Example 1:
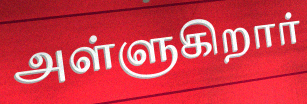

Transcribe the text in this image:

அள்ளுகிறார்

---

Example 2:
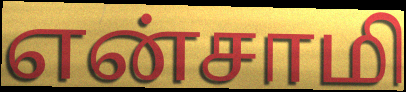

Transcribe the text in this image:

என்சாமி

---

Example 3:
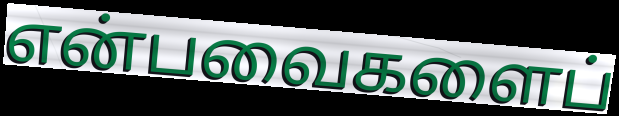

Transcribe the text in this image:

என்பவைகளைப்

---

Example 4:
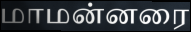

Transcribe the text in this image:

மாமன்னரை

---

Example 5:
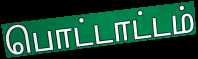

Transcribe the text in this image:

பொட்டாட்டம்